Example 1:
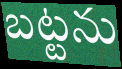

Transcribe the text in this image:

బట్టను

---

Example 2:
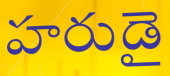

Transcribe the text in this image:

హరుడై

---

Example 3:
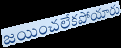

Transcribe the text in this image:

జయించలేకపోయారు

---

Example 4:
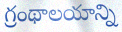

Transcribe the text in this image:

గ్రంథాలయాన్ని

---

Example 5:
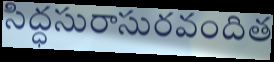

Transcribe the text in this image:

సిద్ధసురాసురవందిత